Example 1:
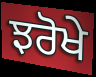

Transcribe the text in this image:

ਝਰੋਖੇ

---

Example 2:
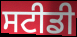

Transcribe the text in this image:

ਸਟੀਡੀ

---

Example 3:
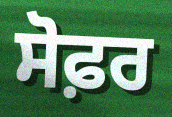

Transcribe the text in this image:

ਸੋਫ਼ਰ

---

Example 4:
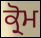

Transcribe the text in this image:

ਕ੍ਰੋਮ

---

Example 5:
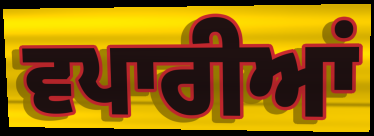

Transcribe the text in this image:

ਵਪਾਰੀਆਂ